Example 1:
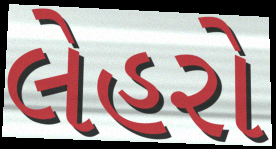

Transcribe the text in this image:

લેહરો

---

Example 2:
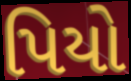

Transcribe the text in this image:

પિયો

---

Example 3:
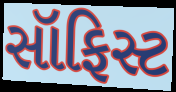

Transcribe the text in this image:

સૉફિસ્ટ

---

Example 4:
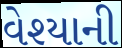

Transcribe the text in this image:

વેશ્યાની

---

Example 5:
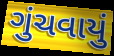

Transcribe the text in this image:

ગુંચવાયું